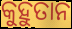
କୁହୁତାନ